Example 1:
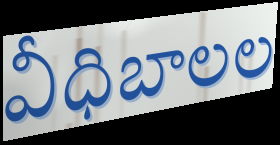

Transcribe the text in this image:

వీధిబాలల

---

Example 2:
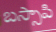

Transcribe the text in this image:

బస్సాపి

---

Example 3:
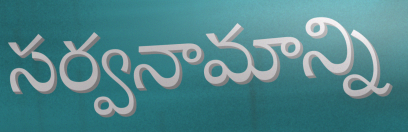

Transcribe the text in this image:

సర్వనామాన్ని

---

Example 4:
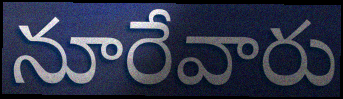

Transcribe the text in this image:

నూరేవారు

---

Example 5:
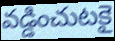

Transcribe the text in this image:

వడ్డించుటకై